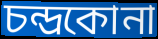
চন্দ্রকোনা